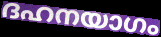
ദഹനയാഗം